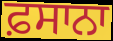
ਫ਼ਸਾਨਾ